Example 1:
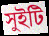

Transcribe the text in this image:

সুইটি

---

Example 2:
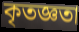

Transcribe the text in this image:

কৃতজ্ঞতা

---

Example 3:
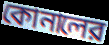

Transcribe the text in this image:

কোনালের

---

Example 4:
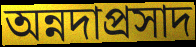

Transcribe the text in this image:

অন্নদাপ্রসাদ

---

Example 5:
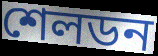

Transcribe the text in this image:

শেলডন